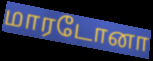
மாரடோனா